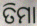
ତିମା